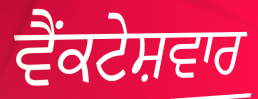
ਵੈਂਕਟੇਸ਼ਵਾਰ